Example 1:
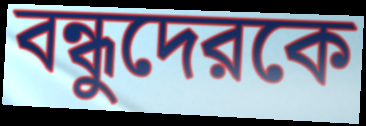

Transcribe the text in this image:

বন্ধুদেরকে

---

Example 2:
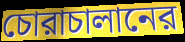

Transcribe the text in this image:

চোরাচালানের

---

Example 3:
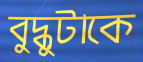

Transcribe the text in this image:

বুদ্ধুটাকে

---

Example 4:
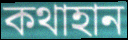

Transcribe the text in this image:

কথাহান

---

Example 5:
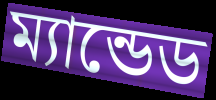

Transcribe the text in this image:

ম্যান্ডেড